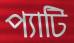
প্যাটি